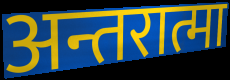
अन्तरात्मा